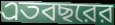
এতবছরের